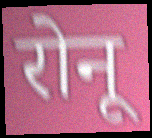
रोनू